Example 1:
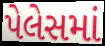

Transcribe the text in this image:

પેલેસમાં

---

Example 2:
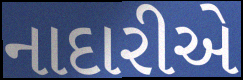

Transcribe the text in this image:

નાદારીએ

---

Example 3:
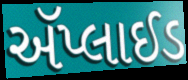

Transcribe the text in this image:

ઍપ્લાઈડ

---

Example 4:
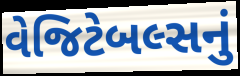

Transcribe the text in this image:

વેજિટેબલ્સનું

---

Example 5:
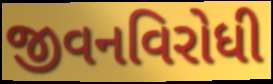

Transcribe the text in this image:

જીવનવિરોધી